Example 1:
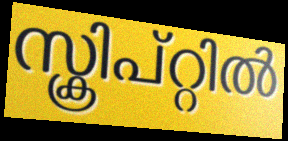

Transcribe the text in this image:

സ്ക്രിപ്റ്റിൽ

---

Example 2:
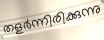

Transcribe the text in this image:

തളർന്നിരിക്കുന്നു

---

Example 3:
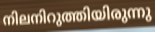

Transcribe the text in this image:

നിലനിറുത്തിയിരുന്നു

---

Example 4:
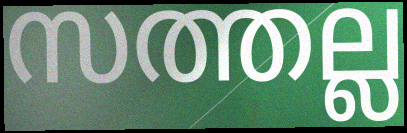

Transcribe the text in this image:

സത്തല്ല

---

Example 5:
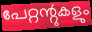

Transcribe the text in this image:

പേറ്റന്റുകളും